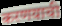
करणयाची